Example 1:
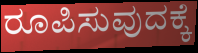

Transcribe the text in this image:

ರೂಪಿಸುವುದಕ್ಕೆ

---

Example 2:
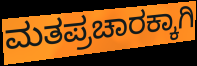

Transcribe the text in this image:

ಮತಪ್ರಚಾರಕ್ಕಾಗಿ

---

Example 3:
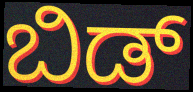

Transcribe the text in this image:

ಬಿಡ್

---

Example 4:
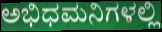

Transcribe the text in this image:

ಅಭಿಧಮನಿಗಳಲ್ಲಿ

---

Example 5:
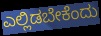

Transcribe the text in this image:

ಎಲ್ಲಿಡಬೇಕೆಂದು